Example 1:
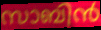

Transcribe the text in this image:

സാബിൻ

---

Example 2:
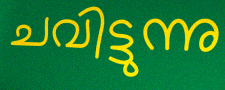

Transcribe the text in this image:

ചവിട്ടുന്നു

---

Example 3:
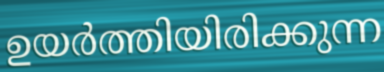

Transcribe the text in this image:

ഉയർത്തിയിരിക്കുന്ന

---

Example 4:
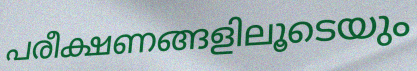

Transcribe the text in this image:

പരീക്ഷണങ്ങളിലൂടെയും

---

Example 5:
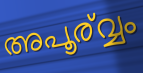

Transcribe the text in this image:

അപൂര്വ്വം